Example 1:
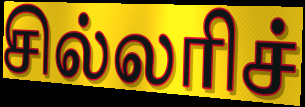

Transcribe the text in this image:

சில்லரிச்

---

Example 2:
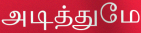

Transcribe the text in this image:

அடித்துமே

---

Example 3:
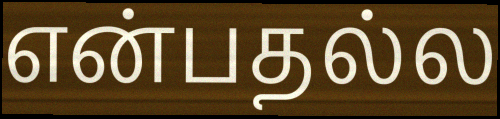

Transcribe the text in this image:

என்பதல்ல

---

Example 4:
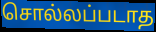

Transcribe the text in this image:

சொல்லப்படாத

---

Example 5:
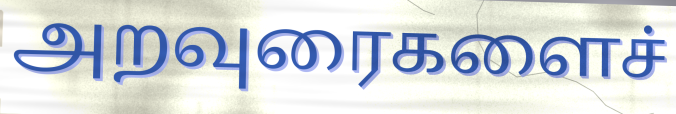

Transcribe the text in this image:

அறவுரைகளைச்